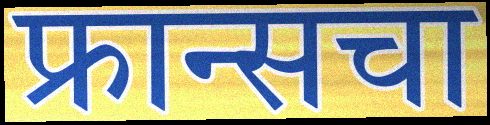
फ्रान्सचा